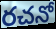
రచనో